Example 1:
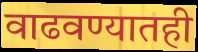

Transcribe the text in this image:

वाढवण्यातही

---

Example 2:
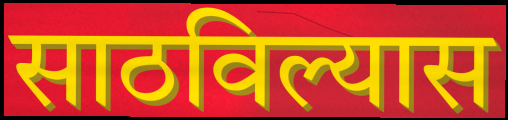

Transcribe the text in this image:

साठविल्यास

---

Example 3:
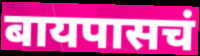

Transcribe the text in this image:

बायपासचं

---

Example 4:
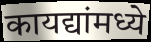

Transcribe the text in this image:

कायद्यांमध्ये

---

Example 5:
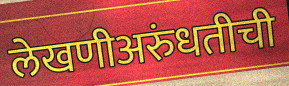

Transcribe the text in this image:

लेखणीअरुंधतीची